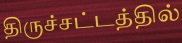
திருச்சட்டத்தில்